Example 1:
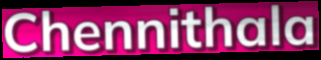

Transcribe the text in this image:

Chennithala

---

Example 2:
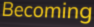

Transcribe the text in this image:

Becoming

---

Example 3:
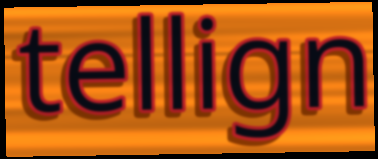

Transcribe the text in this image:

tellign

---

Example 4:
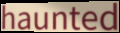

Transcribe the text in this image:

haunted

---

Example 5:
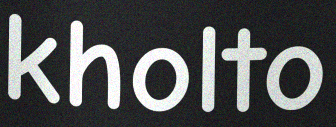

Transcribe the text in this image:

kholto